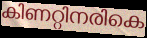
കിണറ്റിനരികെ